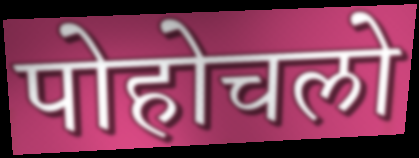
पोहोचलो